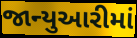
જાન્યુઆરીમાં